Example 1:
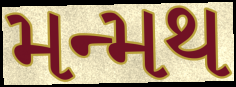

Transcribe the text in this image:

મન્મથ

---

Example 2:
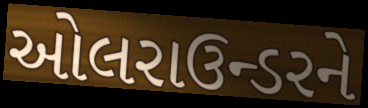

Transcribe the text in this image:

ઓલરાઉન્ડરને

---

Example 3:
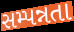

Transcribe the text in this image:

સમ્પન્નતા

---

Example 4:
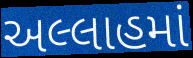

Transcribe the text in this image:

અલ્લાહમાં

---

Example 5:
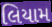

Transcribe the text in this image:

લિયામ